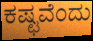
ಕಷ್ಟವೆಂದು